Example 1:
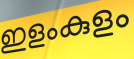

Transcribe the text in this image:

ഇളംകുളം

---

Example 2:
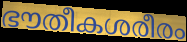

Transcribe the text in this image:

ഭൗതീകശരീരം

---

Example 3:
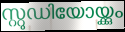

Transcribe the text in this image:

സ്റ്റുഡിയോയ്ക്കും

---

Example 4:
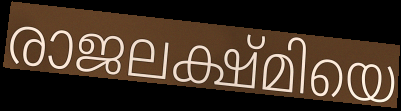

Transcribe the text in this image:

രാജലക്ഷ്മിയെ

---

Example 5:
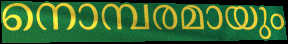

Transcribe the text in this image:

നൊമ്പരമായും